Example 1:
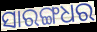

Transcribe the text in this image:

ସାରଙ୍ଗଧର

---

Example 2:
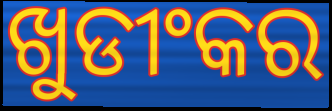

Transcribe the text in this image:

ଖୁଡୀଂକର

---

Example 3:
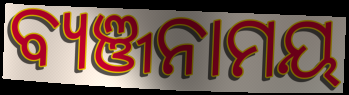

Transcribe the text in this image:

ବ୍ୟଞ୍ଜନାମୟ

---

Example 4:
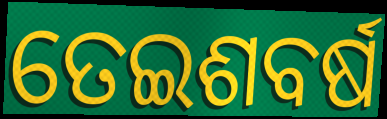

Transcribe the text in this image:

ତେଇଶବର୍ଷ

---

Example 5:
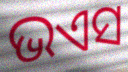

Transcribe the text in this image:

ଭଏସ